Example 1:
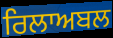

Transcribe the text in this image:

ਰਿਲਾਅਬਲ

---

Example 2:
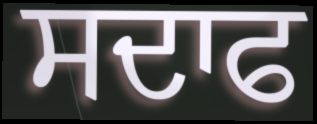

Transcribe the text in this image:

ਸਦਾਫ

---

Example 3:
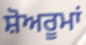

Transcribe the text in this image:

ਸ਼ੋਅਰੂਮਾਂ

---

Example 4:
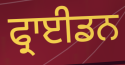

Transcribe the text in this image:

ਫ੍ਰਾਈਡਨ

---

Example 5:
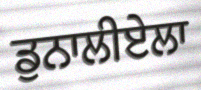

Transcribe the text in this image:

ਡੁਨਾਲੀਏਲਾ